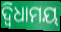
ଦ୍ୱିଧାମୟ